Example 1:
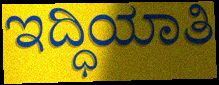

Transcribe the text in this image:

ಇದ್ಧಿಯಾತಿ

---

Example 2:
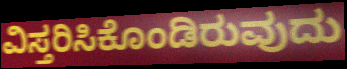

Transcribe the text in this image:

ವಿಸ್ತರಿಸಿಕೊಂಡಿರುವುದು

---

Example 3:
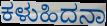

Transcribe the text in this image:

ಕಳುಹಿದನಾ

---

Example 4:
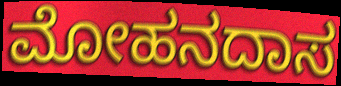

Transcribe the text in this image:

ಮೋಹನದಾಸ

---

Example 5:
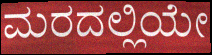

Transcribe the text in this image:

ಮರದಲ್ಲಿಯೇ